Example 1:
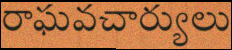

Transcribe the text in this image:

రాఘవచార్యులు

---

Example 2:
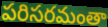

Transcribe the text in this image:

పరిసరమంతా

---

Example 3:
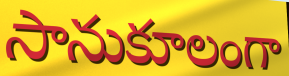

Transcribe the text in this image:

సానుకూలంగా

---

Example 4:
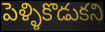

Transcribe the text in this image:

పెళ్ళికొడుకని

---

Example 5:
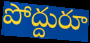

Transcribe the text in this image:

పోద్దురూ